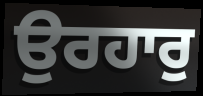
ਉਰਹਾਰੁ